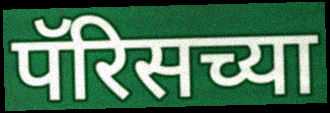
पॅरिसच्या